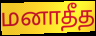
மனாதீத